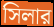
সিলার